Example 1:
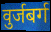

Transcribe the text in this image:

वुर्जबर्ग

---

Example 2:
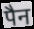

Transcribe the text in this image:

पैन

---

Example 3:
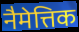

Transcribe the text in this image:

नैमेत्तिक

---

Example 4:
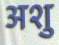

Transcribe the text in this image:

अशु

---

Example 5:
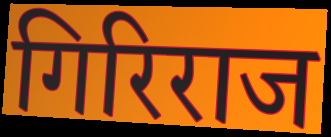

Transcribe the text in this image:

गिरिराज